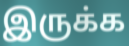
இருக்க